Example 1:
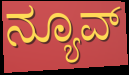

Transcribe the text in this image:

ನ್ಯೂವ್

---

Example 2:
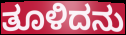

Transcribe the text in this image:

ತೂಳಿದನು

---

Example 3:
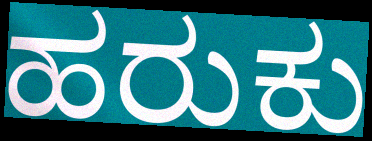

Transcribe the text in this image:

ಹರುಕು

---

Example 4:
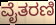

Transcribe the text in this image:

ವೈತರಣಿ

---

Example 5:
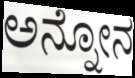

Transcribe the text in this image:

ಅನ್ನೋನ